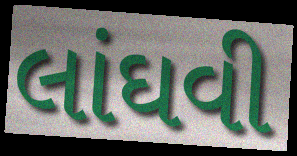
લાંઘવી